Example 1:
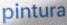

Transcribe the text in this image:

pintura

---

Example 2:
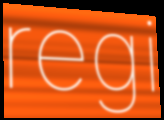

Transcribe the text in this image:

regi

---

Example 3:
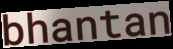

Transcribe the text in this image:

bhantan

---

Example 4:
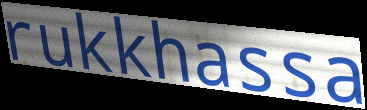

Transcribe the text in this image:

rukkhassa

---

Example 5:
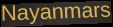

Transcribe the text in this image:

Nayanmars